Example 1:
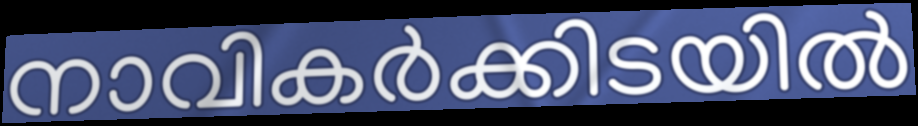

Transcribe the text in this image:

നാവികർക്കിടയിൽ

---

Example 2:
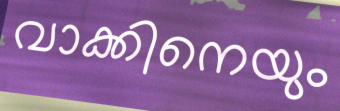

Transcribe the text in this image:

വാക്കിനെയും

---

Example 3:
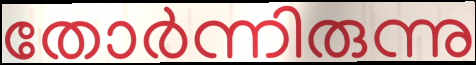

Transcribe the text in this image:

തോർന്നിരുന്നു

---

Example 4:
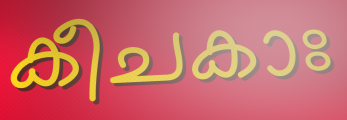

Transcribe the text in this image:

കീചകാഃ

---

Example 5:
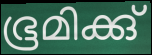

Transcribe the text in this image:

ഭൂമിക്കു്